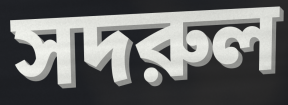
সদরুল